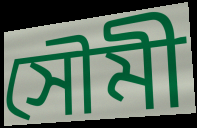
সৌমী